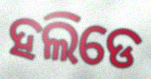
ହଲିଡେ